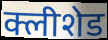
क्लीशेड